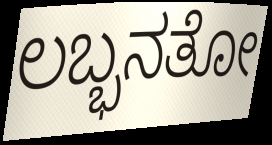
ಲಬ್ಭನತೋ